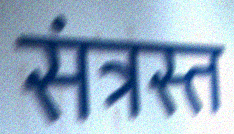
संत्रस्त